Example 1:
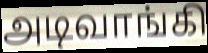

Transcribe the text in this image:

அடிவாங்கி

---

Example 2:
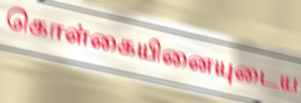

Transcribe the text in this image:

கொள்கையினையுடைய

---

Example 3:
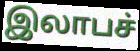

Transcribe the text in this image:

இலாபச்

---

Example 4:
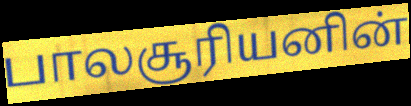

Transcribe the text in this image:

பாலசூரியனின்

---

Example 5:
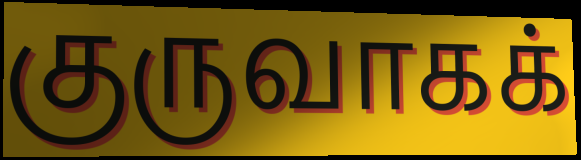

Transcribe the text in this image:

குருவாகக்